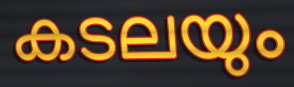
കടലയും